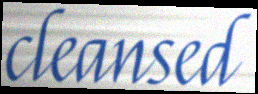
cleansed